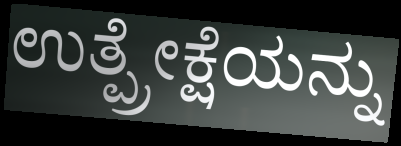
ಉತ್ಪ್ರೇಕ್ಷೆಯನ್ನು